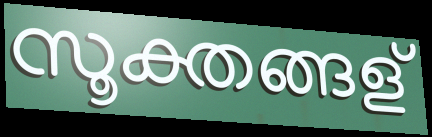
സൂക്തങ്ങള്